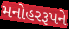
મનોહરરૂપને